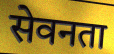
सेवनता